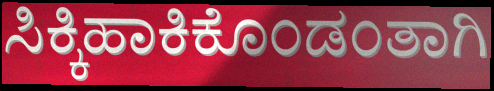
ಸಿಕ್ಕಿಹಾಕಿಕೊಂಡಂತಾಗಿ